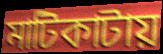
মাটিকাটায়